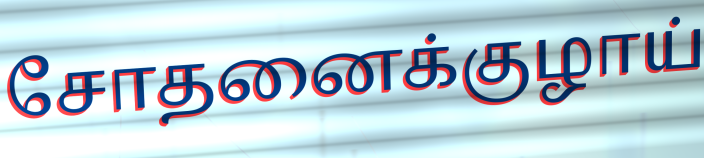
சோதனைக்குழாய்